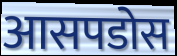
आसपडोस